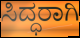
ಸಿದ್ಧರಾಗಿ